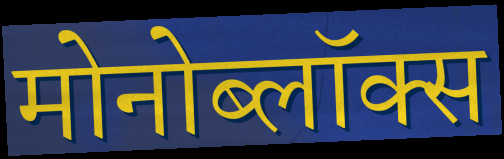
मोनोब्लॉक्स